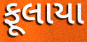
ફૂલાયા